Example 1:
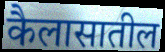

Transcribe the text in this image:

कैलासातील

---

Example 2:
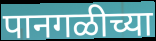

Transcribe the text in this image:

पानगळीच्या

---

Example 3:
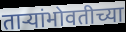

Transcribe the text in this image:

ताऱ्यांभोवतीच्या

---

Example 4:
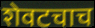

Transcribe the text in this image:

शेवटचाच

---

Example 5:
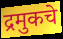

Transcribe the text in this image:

द्रमुकचे